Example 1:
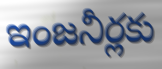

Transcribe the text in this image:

ఇంజనీర్లకు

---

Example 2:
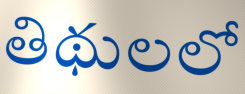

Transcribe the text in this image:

తిథులలో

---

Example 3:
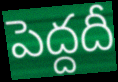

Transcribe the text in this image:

పెద్దదీ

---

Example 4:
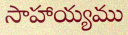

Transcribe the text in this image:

సాహాయ్యము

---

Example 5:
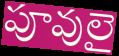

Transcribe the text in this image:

పూవులై